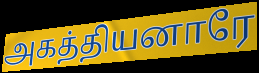
அகத்தியனாரே